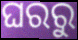
ଘରରୁ